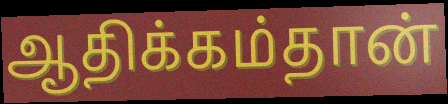
ஆதிக்கம்தான்